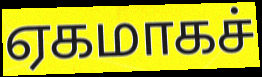
ஏகமாகச்